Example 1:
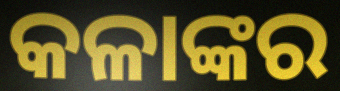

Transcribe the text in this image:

କଳାଙ୍କର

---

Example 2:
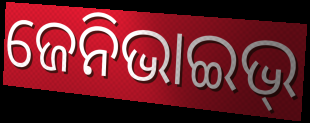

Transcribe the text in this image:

ଜେନିଭାଇଭ୍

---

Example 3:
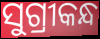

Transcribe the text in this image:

ସୁଗ୍ରୀକନ୍ଧ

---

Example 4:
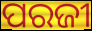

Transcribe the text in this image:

ପରଜୀ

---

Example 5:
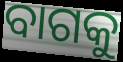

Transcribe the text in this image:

ବାଗକୁ